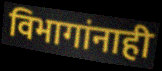
विभागांनाही